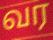
வர